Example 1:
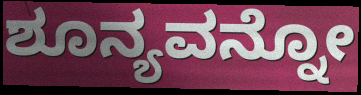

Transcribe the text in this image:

ಶೂನ್ಯವನ್ನೋ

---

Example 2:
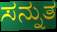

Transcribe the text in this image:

ಸನ್ನುತ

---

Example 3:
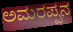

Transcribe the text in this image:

ಅಮರಪ್ಪನ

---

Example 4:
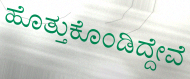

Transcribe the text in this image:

ಹೊತ್ತುಕೊಂಡಿದ್ದೇವೆ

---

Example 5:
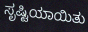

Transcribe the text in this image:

ಸೃಷ್ಟಿಯಾಯಿತು